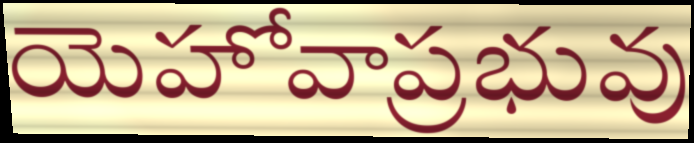
యెహోవాప్రభువు